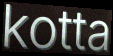
kotta